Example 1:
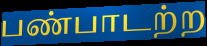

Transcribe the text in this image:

பண்பாடற்ற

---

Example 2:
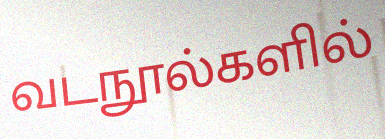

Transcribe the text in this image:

வடநூல்களில்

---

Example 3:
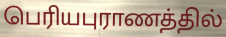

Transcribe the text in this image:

பெரியபுராணத்தில்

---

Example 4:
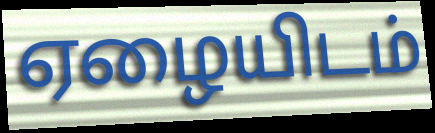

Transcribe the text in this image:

ஏழையிடம்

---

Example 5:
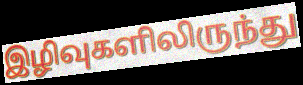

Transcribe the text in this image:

இழிவுகளிலிருந்து